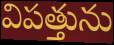
విపత్తును